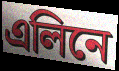
এলিনে